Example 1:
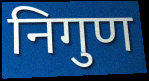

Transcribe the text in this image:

निगुण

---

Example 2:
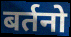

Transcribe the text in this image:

बर्तनो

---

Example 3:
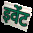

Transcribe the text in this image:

इवेंट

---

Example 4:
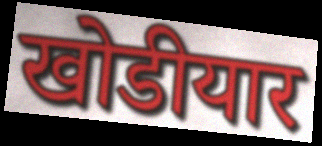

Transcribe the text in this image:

खोडीयार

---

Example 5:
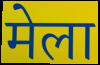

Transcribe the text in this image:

मेला